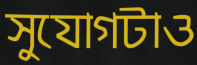
সুযোগটাও